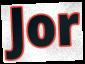
Jor